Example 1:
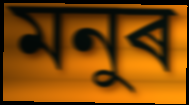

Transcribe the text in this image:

মনুৰ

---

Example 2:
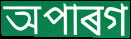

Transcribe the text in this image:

অপাৰগ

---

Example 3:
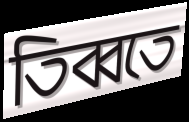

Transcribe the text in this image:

তিব্বতে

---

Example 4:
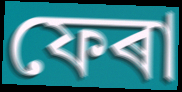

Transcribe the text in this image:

ফেৰা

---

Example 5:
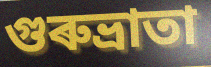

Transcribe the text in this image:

গুৰুভ্ৰাতা